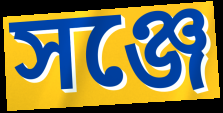
সঞ্জে